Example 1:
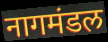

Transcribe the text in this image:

नागमंडल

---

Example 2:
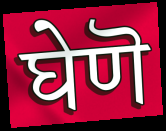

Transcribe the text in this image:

घेणॆ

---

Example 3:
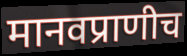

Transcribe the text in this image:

मानवप्राणीच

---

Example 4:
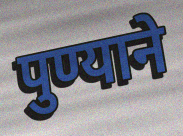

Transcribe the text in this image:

पुण्याने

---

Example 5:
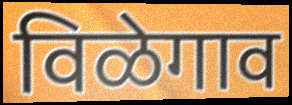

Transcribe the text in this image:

विळेगाव